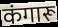
कंगारू